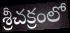
శ్రీచక్రంలో